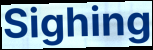
Sighing